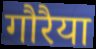
गौरैया